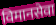
विमानसेवा